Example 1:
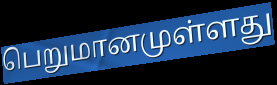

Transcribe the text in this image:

பெறுமானமுள்ளது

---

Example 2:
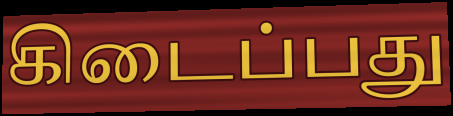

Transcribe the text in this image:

கிடைப்பது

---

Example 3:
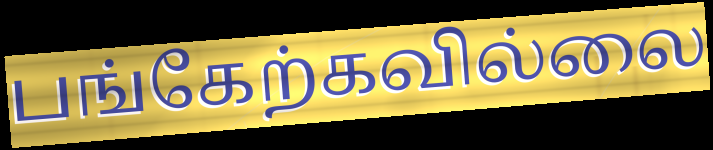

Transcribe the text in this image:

பங்கேற்கவில்லை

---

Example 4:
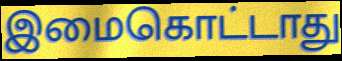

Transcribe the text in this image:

இமைகொட்டாது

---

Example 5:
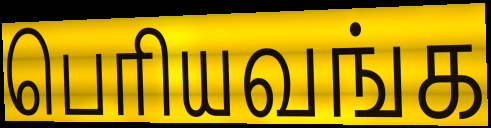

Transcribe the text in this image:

பெரியவங்க